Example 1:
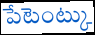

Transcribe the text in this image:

పేటెంట్కు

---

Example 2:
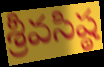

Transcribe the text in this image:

శ్రీవసిష్ఠ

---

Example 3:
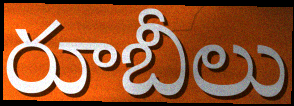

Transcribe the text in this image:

రూబీలు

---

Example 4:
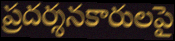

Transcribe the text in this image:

ప్రదర్శనకారులపై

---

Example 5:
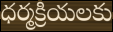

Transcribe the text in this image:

ధర్మక్రియలకు